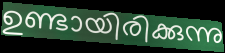
ഉണ്ടായിരിക്കുന്നു